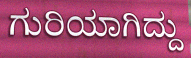
ಗುರಿಯಾಗಿದ್ದು